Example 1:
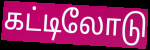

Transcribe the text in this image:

கட்டிலோடு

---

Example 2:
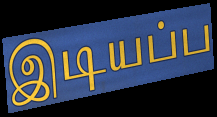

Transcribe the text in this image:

இடியப்ப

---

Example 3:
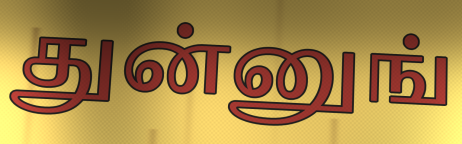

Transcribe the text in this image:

துன்னுங்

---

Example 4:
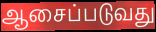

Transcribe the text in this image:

ஆசைப்படுவது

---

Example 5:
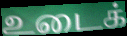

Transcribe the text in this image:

உடைக்